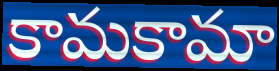
కామకామా